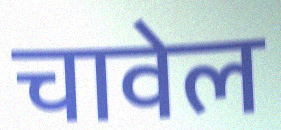
चावेल